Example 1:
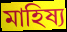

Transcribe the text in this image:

মাহিষ্য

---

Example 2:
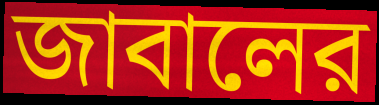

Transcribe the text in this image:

জাবালের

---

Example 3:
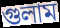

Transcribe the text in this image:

গুলাম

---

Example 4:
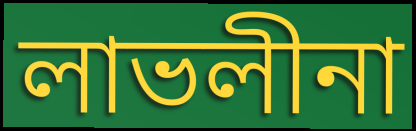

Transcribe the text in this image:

লাভলীনা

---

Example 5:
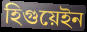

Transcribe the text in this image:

হিগুয়েইন